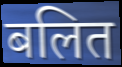
बलित